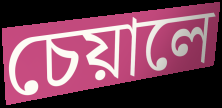
চেয়ালে